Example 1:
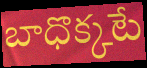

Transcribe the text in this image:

బాధొక్కటే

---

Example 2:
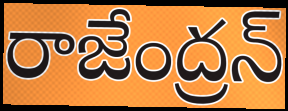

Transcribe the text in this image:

రాజేంద్రన్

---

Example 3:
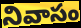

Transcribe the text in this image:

నివాసం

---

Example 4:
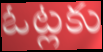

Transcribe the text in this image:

ఓట్లకు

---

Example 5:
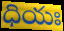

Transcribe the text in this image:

ధియః